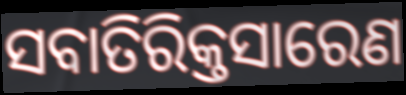
ସବାତିରିକ୍ତସାରେଣ